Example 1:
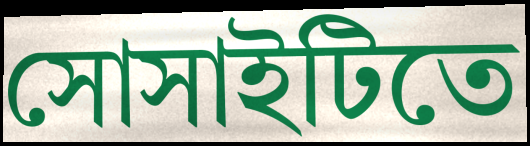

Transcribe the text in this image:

সোসাইটিতে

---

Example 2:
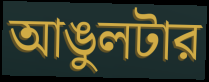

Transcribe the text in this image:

আঙুলটার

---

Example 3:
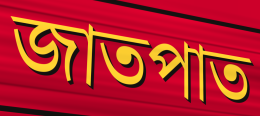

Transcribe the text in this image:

জাতপাত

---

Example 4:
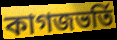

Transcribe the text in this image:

কাগজভর্তি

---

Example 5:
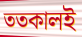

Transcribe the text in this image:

ততকালই